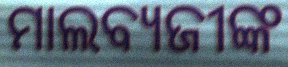
ମାଲବ୍ୟଜୀଙ୍କ